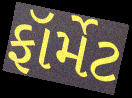
ફૉર્મેટ